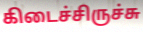
கிடைச்சிருச்சு